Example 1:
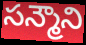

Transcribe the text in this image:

సన్మౌని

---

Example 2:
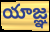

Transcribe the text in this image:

యాజ్ఞ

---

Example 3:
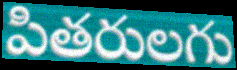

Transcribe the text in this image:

పితరులగు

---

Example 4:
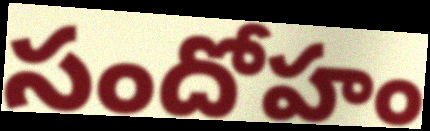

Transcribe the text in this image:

సందోహం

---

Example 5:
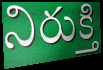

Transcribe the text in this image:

నిరుక్తి